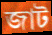
জাট